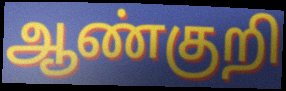
ஆண்குறி